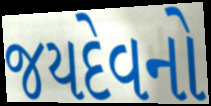
જયદેવનો